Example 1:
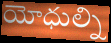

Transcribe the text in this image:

యోధుల్ని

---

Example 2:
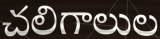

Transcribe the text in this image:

చలిగాలుల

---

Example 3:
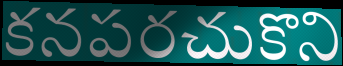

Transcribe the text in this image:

కనపరచుకొని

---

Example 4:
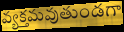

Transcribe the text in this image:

వ్యక్తమవుతుండగా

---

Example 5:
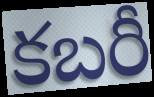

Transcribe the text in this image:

కబరీ